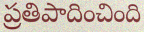
ప్రతిపాదించింది